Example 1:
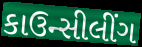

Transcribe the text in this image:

કાઉન્સીલીંગ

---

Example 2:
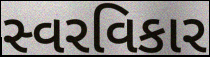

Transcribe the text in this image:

સ્વરવિકાર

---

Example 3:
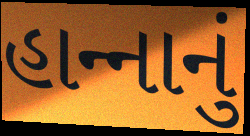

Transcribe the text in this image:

હાન્‍નાનું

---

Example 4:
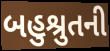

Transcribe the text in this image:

બહુશ્રુતની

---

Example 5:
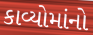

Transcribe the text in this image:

કાવ્યોમાંનો